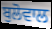
ਬੁਲੋਵਾਲ